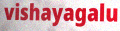
vishayagalu